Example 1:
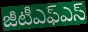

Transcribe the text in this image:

జీటీఎఫ్ఎస్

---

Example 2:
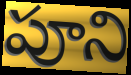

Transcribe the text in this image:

పూని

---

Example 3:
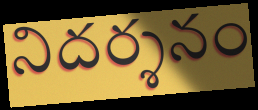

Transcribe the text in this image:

నిదర్శనం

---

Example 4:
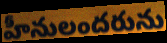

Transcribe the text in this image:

హీనులందరును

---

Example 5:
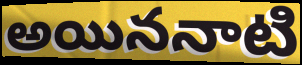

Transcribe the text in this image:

అయిననాటి